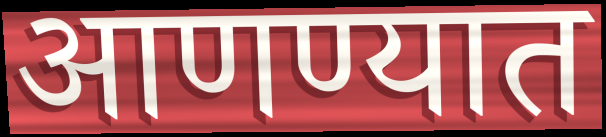
आणण्यात